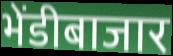
भेंडीबाजार